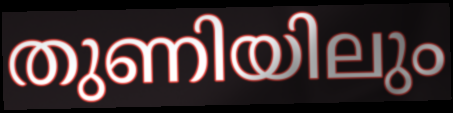
തുണിയിലും